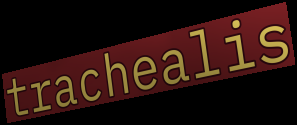
trachealis